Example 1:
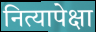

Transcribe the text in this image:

नित्यापेक्षा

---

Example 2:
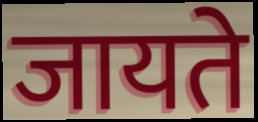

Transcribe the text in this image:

जायते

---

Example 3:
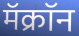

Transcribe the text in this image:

मॅक्रॉन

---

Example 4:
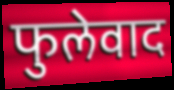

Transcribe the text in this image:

फुलेवाद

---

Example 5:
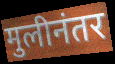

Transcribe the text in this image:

मुलीनंतर